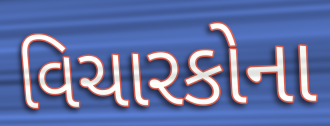
વિચારકોના